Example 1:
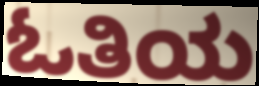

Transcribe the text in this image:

ಓತಿಯ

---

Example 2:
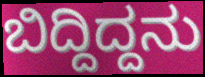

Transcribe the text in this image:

ಬಿದ್ದಿದ್ದನು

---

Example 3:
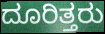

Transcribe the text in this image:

ದೂರಿತ್ತರು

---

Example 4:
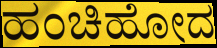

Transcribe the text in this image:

ಹಂಚಿಹೋದ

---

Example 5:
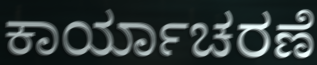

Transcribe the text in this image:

ಕಾರ್ಯಾಚರಣೆ